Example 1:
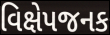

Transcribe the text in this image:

વિક્ષેપજનક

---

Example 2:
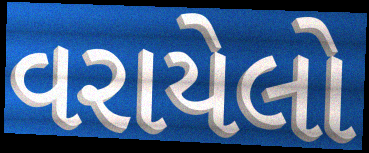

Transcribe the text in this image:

વરાયેલો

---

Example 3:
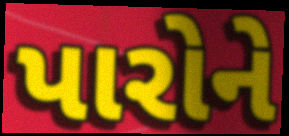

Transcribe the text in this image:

પારોને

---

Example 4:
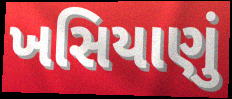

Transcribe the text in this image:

ખસિયાણું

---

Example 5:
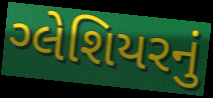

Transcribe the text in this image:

ગ્લેશિયરનું